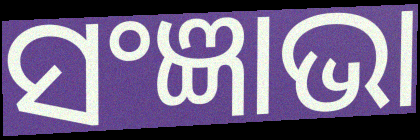
ସଂଜ୍ଞାଭା